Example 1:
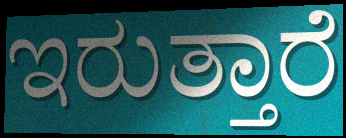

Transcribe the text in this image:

ಇರುತ್ತಾರೆ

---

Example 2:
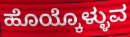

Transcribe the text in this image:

ಹೊಯ್ಕೊಳ್ಳುವ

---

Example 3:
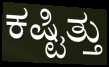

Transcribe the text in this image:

ಕಷ್ಟಿತ್ತು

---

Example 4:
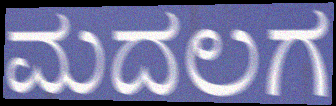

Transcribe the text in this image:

ಮದಲಗ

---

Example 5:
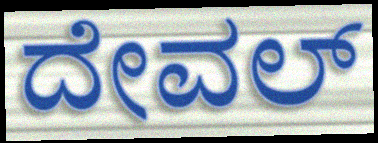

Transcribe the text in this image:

ದೇವಲ್